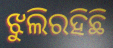
ଝୁଲିରହିଛି